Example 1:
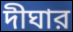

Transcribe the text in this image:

দীঘার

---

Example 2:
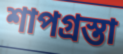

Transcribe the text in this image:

শাপগ্রস্তা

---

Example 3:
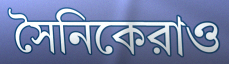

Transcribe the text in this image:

সৈনিকেরাও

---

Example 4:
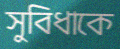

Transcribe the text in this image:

সুবিধাকে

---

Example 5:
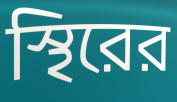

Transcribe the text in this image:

স্থিরের